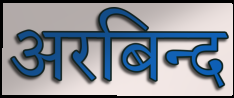
अरबिन्द